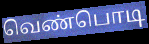
வெண்பொடி